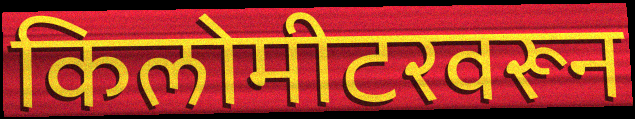
किलोमीटरवरून